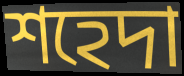
শহেদা